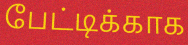
பேட்டிக்காக